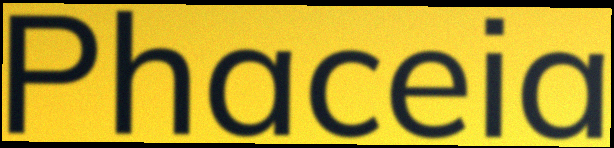
Phaceia